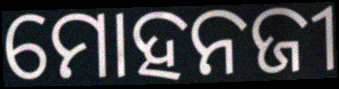
ମୋହନଜୀ